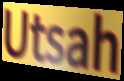
Utsah